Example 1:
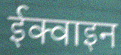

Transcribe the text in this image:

ईक्वाइन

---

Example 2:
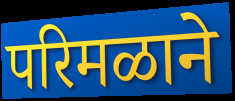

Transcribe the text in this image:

परिमळाने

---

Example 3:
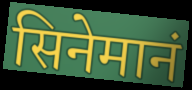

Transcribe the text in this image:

सिनेमानं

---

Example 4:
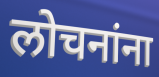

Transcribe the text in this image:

लोचनांना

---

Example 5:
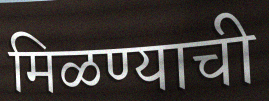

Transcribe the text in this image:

मिळण्याची